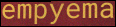
empyema